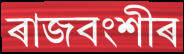
ৰাজবংশীৰ